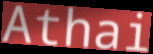
Athai